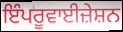
ਇੰਪਰੂਵਾਈਜ਼ੇਸ਼ਨ